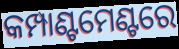
କମ୍ପାଣ୍ଟମେଣ୍ଟରେ